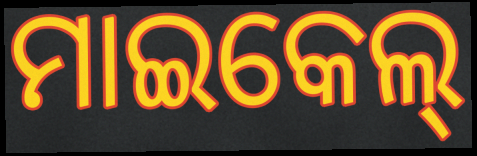
ମାଇକେଲ୍